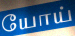
யோய்